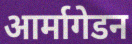
आर्मागेडन